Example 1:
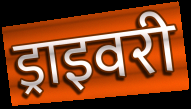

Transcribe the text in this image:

ड्राइवरी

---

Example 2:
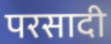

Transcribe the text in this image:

परसादी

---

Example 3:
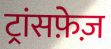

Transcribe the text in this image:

ट्रांसफ़ेज़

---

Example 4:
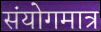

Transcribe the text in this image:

संयोगमात्र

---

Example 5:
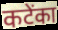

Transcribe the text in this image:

कटेंका